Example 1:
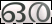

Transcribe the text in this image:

ഒര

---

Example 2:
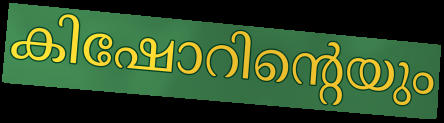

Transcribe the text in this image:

കിഷോറിന്റെയും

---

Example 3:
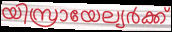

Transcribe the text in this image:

യിസ്രായേല്യർക്ക്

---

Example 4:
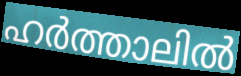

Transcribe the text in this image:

ഹർത്താലിൽ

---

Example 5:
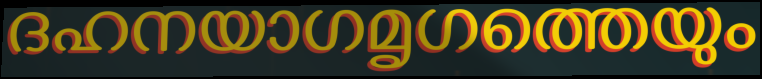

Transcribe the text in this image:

ദഹനയാഗമൃഗത്തെയും